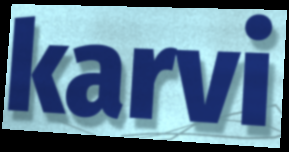
karvi